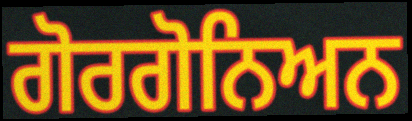
ਗੋਰਗੋਨਿਅਨ